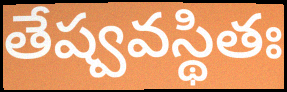
తేష్వవస్థితః